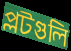
প্লটগুলি